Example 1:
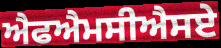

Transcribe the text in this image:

ਐਫਐਮਸੀਐਸਏ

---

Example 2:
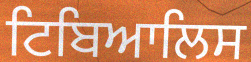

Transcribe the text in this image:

ਟਿਬਿਆਲਿਸ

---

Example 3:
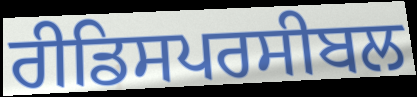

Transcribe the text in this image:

ਰੀਡਿਸਪਰਸੀਬਲ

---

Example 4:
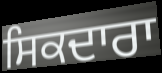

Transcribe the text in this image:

ਸਿਕਦਾਰਾ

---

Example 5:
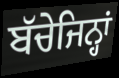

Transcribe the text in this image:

ਬੱਚੇਜਿਨ੍ਹਾਂ